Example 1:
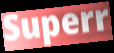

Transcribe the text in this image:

Superr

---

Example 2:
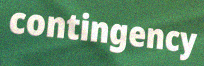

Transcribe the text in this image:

contingency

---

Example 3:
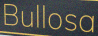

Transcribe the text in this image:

Bullosa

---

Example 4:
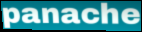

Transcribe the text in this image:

panache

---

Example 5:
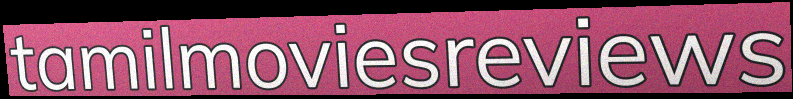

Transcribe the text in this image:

tamilmoviesreviews